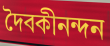
দৈবকীনন্দন